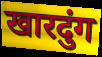
खारदुंग